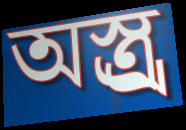
অস্ত্র্র